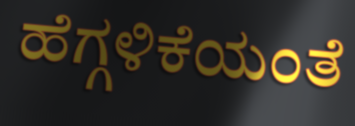
ಹೆಗ್ಗಳಿಕೆಯಂತೆ